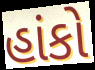
હાંકો